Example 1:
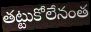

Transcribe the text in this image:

తట్టుకోలేనంత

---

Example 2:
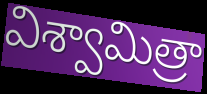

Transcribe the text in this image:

విశ్వామిత్రా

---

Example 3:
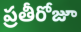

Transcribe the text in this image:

ప్రతీరోజూ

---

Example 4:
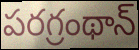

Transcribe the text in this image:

పరగ్రంథాన్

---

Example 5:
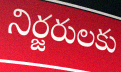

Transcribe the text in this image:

నిర్జరులకు